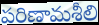
పరిణామశీలి